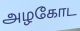
அழகோட